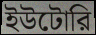
ইউটোরি